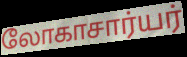
லோகாசார்யர்